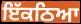
ਇੱਕਠਿਆ